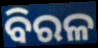
ବିରଳ